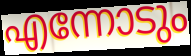
എന്നോടും